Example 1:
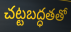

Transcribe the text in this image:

చట్టబద్ధతతో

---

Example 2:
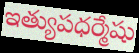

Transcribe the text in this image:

ఇత్యుపధర్మేషు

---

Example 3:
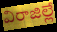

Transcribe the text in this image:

విరాజిల్లే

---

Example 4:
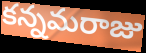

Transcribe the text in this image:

కన్నమరాజు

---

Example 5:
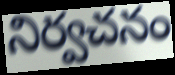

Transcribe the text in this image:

నిర్వచనం